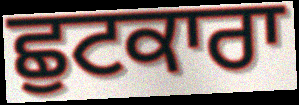
ਛੁਟਕਾਰਾ